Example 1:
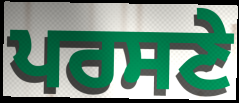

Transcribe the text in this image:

ਪਰਸਣੇ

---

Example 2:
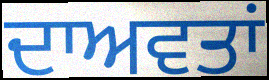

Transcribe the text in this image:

ਦਾਅਵਤਾਂ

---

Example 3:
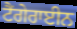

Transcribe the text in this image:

ਟੈਂਗੇਰਾਈਨ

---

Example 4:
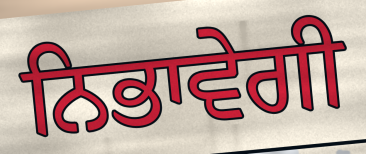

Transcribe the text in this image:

ਨਿਭਾਵੇਗੀ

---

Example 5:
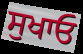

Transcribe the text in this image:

ਸੁਖਾਓ